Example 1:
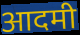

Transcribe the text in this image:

आदमी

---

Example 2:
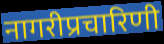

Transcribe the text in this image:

नागरीप्रचारिणी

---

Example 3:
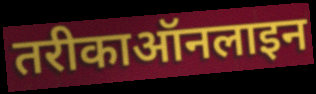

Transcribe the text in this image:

तरीकाऑनलाइन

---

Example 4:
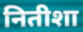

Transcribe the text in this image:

नितीशा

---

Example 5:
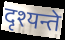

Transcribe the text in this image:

दृश्यन्ते